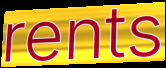
rents